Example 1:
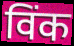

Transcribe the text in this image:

विंक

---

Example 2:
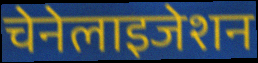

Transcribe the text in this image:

चेनेलाइजेशन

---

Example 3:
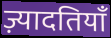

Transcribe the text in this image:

ज़्यादतियाँ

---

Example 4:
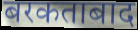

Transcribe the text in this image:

बरकताबाद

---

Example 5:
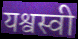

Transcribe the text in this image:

यश्वस्वी